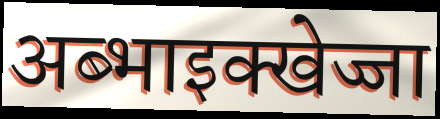
अब्भाइक्खेज्जा